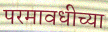
परमावधीच्या